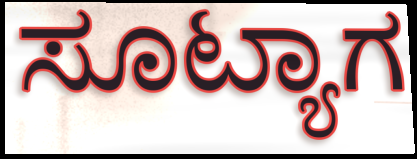
ಸೂಟ್ಯಾಗ